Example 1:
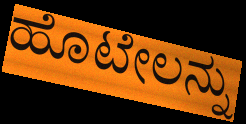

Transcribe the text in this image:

ಹೊಟೇಲನ್ನು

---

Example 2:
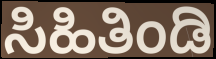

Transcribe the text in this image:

ಸಿಹಿತಿಂಡಿ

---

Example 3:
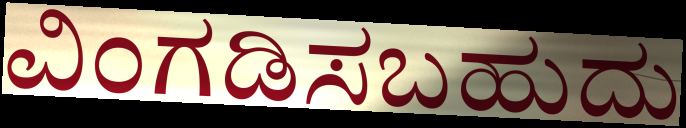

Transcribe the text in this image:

ವಿಂಗಡಿಸಬಹುದು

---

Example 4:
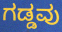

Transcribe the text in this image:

ಗಡ್ಡವು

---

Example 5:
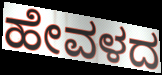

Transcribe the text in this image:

ಹೇವಳದ